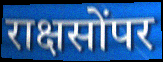
राक्षसोंपर